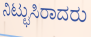
ನಿಟ್ಟುಸಿರಾದರು